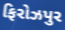
ફિરોઝપુર